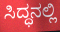
ಸಿದ್ಧನಲ್ಲಿ